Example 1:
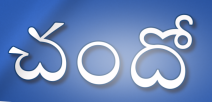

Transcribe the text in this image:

చందో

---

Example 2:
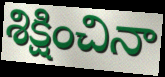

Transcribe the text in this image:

శిక్షించినా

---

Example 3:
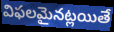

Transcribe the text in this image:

విఫలమైనట్లయితే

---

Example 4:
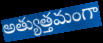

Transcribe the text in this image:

అత్యుత్తమంగా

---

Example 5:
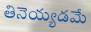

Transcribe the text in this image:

తినెయ్యడమే